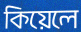
কিয়েলে